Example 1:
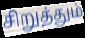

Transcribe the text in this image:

சிறுத்தும்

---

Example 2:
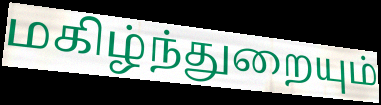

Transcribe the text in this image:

மகிழ்ந்துறையும்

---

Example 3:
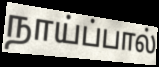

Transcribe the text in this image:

நாய்ப்பால்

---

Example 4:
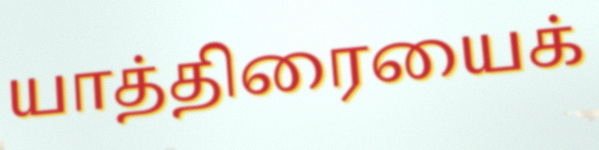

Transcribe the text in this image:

யாத்திரையைக்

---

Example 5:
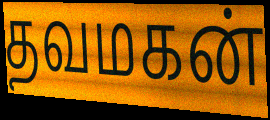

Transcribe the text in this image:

தவமகன்